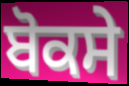
ਬੋਕਸੇ